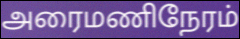
அரைமணிநேரம்